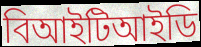
বিআইটিআইডি